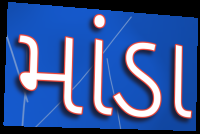
માંડા